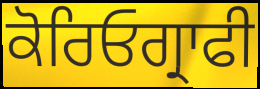
ਕੋਰਿਓਗ੍ਰਾਫੀ